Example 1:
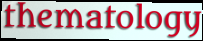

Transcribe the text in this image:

thematology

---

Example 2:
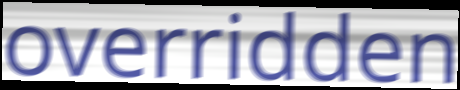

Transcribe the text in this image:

overridden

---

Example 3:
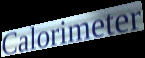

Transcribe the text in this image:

Calorimeter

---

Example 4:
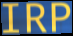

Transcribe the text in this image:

IRP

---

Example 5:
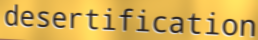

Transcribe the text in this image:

desertification